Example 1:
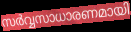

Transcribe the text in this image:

സർവ്വസാധാരണമായി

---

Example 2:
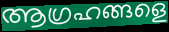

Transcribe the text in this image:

ആഗ്രഹങ്ങളെ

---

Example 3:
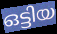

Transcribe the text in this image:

ഒട്ടിയ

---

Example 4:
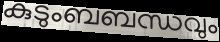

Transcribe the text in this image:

കുടുംബബന്ധവും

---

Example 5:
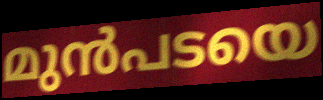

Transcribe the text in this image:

മുൻപടയെ